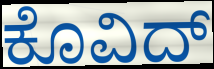
ಕೊವಿದ್